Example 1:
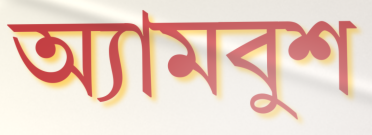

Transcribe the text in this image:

অ্যামবুশ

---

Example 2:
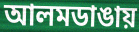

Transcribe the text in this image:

আলমডাঙায়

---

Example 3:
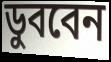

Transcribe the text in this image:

ডুববেন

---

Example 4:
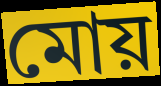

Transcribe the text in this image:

মোয়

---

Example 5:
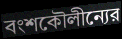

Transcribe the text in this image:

বংশকৌলীন্যের